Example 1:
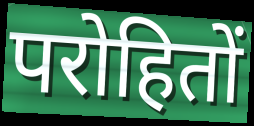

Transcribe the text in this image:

परोहितों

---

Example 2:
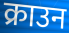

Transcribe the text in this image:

क्राउन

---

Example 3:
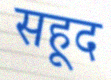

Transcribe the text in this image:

सहूद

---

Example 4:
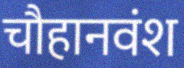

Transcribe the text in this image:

चौहानवंश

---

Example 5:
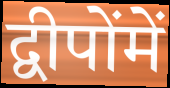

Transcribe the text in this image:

द्वीपोंमें